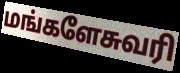
மங்களேசுவரி